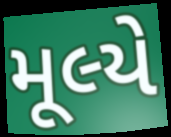
મૂલ્યે